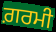
ਗ਼ਰਮੀ